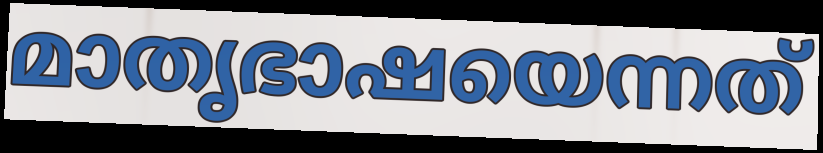
മാതൃഭാഷയെന്നത്